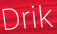
Drik